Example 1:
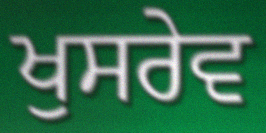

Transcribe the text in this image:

ਖੁਸਰੇਵ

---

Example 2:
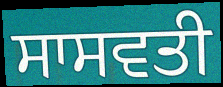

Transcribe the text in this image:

ਸਾਸਵਤੀ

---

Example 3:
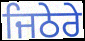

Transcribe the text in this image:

ਜਿਠੇਰੇ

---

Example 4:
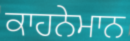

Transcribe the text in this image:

ਕਾਹਨੇਮਾਨ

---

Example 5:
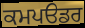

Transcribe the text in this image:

ਕਮਪੳਡਰ